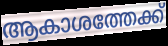
ആകാശത്തേക്ക്